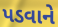
પડવાને